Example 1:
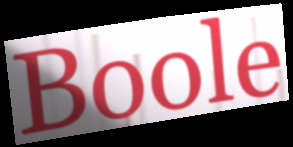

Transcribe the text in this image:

Boole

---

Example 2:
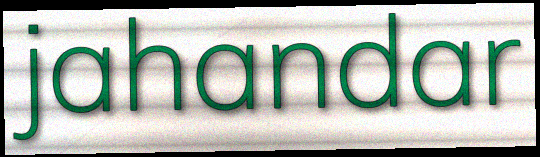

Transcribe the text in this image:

jahandar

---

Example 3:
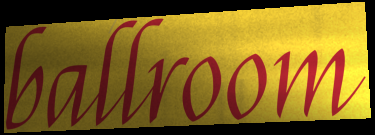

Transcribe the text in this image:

ballroom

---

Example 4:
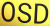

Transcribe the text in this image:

OSD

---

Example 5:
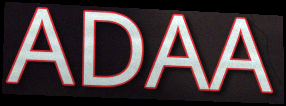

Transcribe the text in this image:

ADAA